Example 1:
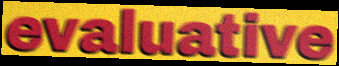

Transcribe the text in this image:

evaluative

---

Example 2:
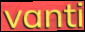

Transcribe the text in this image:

vanti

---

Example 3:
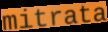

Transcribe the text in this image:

mitrata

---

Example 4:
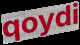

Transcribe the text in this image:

qoydi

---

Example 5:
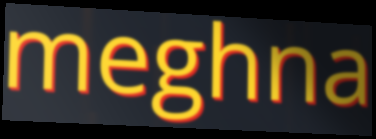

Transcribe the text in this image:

meghna